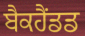
ਬੈਕਹੈਂਡਡ